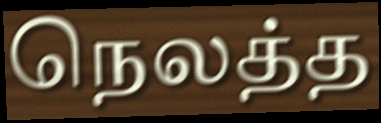
நெலத்த